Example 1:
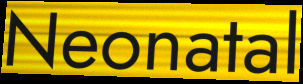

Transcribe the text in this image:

Neonatal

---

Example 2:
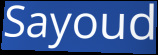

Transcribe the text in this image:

Sayoud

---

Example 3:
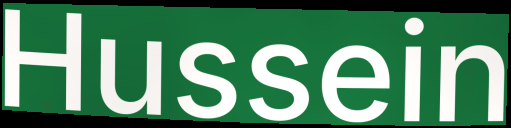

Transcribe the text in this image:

Hussein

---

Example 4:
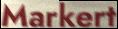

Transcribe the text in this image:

Markert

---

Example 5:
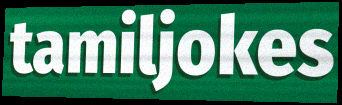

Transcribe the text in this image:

tamiljokes